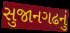
સુજાનગઢનું